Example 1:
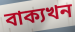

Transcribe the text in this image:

বাক্যখন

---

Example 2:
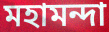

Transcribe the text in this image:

মহামন্দা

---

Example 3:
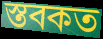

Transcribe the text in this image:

স্তবকত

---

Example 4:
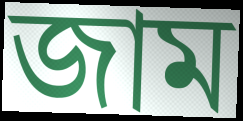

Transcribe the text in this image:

জাম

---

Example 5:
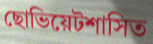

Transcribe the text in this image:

ছোভিয়েটশাসিত